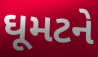
ઘૂમટને